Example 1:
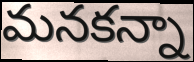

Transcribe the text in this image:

మనకన్నా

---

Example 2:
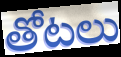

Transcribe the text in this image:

తోటలు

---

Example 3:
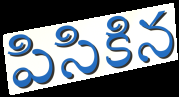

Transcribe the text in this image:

పిసికిన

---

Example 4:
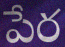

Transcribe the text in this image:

పేర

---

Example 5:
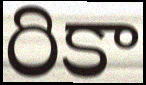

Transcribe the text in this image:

రికా